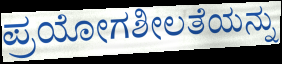
ಪ್ರಯೋಗಶೀಲತೆಯನ್ನು